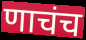
णाचंच